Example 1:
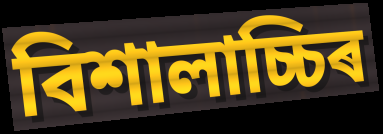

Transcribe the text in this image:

বিশালাচ্চিৰ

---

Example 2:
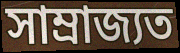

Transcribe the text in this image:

সাম্ৰাজ্যত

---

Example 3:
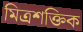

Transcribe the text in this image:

মিত্ৰশক্তিক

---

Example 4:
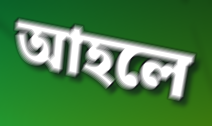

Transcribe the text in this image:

আহলে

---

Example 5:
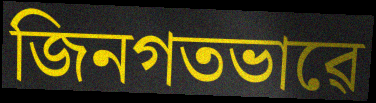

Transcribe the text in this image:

জিনগতভাৱে